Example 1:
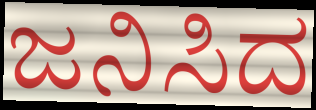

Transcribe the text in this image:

ಜನಿಸಿದ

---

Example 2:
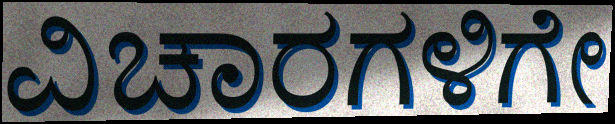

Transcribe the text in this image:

ವಿಚಾರಗಳಿಗೇ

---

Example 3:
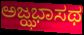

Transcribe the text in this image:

ಅಜ್ಝಭಾಸಥ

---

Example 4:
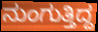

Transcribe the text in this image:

ನುಂಗುತ್ತಿದ್ದ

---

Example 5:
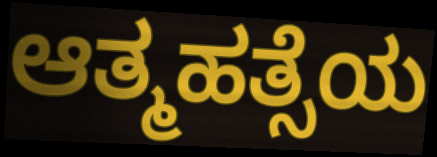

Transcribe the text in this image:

ಆತ್ಮಹತ್ಸೆಯ